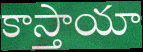
కాస్తాయా